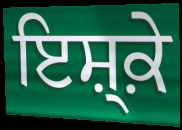
ਇਸ਼੍ਕ਼ੇ